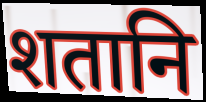
शतानि